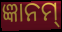
ଜ୍ଞାନମ୍